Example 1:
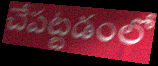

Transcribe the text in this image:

చేపట్టడంలో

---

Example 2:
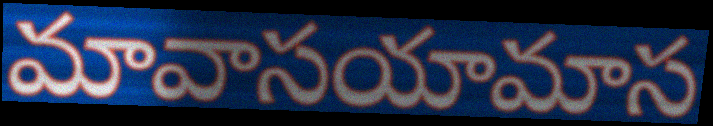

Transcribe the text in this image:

మావాసయామాస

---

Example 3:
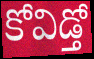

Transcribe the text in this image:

కోవిడ్తో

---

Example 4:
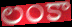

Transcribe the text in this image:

లంకా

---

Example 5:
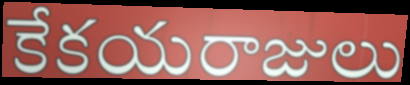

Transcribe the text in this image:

కేకయరాజులు